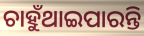
ଚାହୁଁଥାଇପାରନ୍ତି